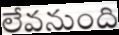
లేవనుంది